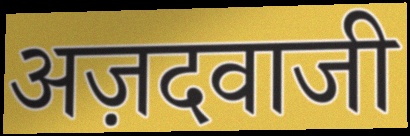
अज़दवाजी